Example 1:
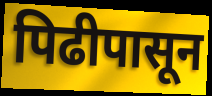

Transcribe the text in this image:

पिढीपासून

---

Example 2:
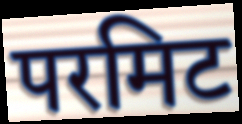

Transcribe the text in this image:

परमिट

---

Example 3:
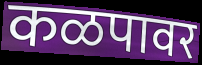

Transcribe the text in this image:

कळपावर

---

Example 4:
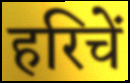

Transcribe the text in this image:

हरिचें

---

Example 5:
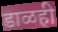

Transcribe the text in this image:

डाळही